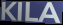
KILA